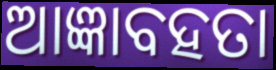
ଆଜ୍ଞାବହତା